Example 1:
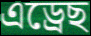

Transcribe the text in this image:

এড্ৰেছ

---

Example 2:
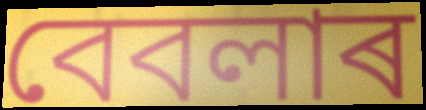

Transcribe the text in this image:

বেবলাৰ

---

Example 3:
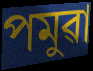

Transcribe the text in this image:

পমুৱা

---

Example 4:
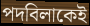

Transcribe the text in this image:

পদবিলাকেই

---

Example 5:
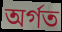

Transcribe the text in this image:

অৰ্গত